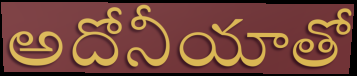
అదోనీయాతో